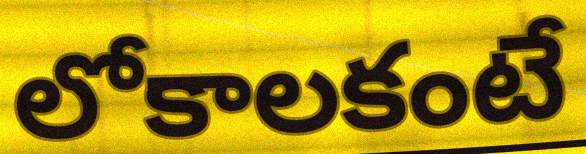
లోకాలకంటే